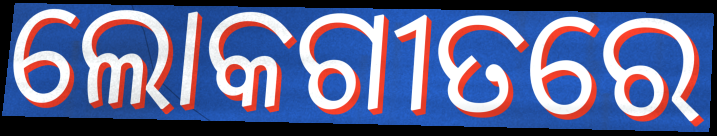
ଲୋକଗୀତରେ